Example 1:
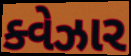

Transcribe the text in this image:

ક્વેઝાર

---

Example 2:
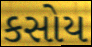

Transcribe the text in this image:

કસોય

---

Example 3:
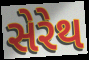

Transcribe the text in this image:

સેરેથ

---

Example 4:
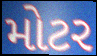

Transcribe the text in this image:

મોટર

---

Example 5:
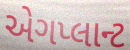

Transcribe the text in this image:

એગપ્લાન્ટ